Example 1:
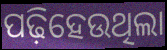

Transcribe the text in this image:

ପଢ଼ିହେଉଥିଲା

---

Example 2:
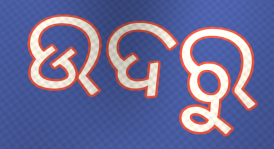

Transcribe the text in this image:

ଉଦରୁ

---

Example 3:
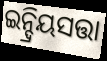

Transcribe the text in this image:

ଇନ୍ଦ୍ରିୟସତ୍ତା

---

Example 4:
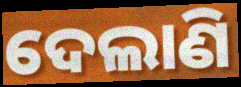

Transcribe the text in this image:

ଦେଲାଣି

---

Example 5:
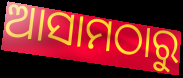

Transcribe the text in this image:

ଆସାମଠାରୁ